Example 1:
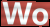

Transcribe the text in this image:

Wo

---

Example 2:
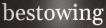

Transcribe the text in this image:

bestowing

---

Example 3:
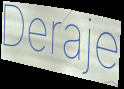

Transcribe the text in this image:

Deraje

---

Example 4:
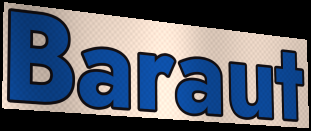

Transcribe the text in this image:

Baraut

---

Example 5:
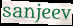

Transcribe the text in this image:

sanjeev